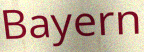
Bayern